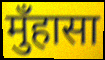
मुँहासा